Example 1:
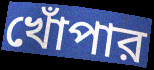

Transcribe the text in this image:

খোঁপার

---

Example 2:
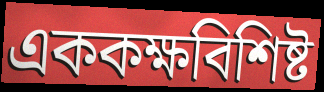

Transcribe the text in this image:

এককক্ষবিশিষ্ট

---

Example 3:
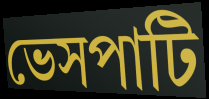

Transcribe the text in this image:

ভেসপাটি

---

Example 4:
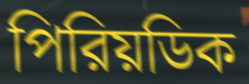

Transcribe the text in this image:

পিরিয়ডিক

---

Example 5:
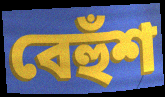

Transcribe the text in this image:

বেহুঁশ